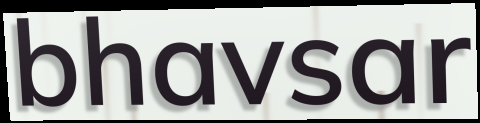
bhavsar